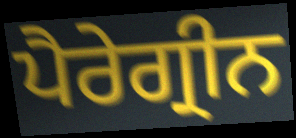
ਪੈਰੇਗ੍ਰੀਨ